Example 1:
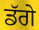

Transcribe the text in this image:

ਡੱਗੇ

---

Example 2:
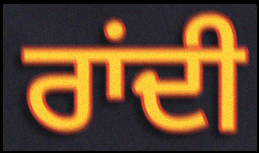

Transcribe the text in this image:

ਰਾਂਦੀ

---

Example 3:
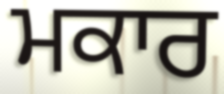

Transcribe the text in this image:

ਮਕਾਰ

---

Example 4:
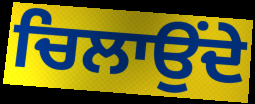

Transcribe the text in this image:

ਚਿਲਾਉਂਦੇ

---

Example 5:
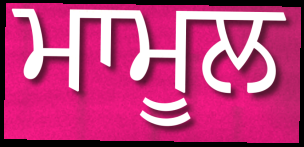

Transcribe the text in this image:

ਮਾਮੂਲ